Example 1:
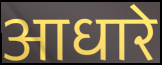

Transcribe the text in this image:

आधारे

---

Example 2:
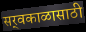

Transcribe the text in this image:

सर्वकाळासाठी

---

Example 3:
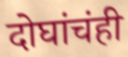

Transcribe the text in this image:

दोघांचंही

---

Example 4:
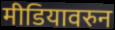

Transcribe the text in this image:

मीडियावरुन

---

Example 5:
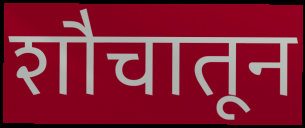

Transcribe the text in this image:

शौचातून